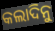
କଲାଦିନୁ